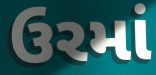
ઉરમાં